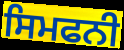
ਸਿਮਫਨੀ